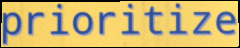
prioritize